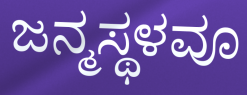
ಜನ್ಮಸ್ಥಳವೂ